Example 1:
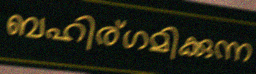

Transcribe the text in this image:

ബഹിര്ഗമിക്കുന്ന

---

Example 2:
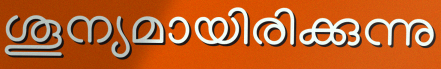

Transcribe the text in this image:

ശൂന്യമായിരിക്കുന്നു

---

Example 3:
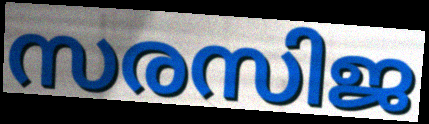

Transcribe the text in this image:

സരസിജ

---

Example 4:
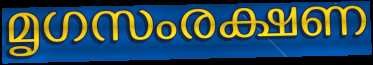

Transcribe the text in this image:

മൃഗസംരക്ഷണ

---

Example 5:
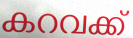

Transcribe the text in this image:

കറവക്ക്